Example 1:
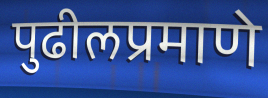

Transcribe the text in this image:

पुढीलप्रमाणे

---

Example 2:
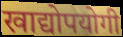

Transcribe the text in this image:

खाद्योपयोगी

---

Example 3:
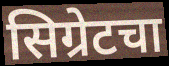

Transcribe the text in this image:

सिग्रेटचा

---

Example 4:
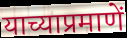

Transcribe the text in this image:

याच्याप्रमाणें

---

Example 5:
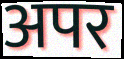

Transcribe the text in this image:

अपर